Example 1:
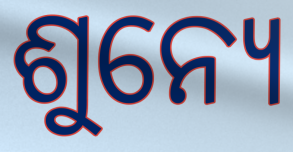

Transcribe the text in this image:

ଶୁନ୍ୟେ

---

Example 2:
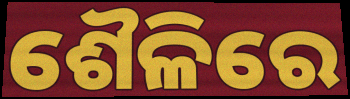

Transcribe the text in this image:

ଶୈଳିରେ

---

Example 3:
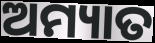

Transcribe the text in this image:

ଅମ୍ୟାତ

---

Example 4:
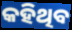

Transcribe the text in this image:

କହିଥିବ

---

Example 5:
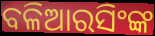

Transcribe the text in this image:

ବଳିଆରସିଂଙ୍କ